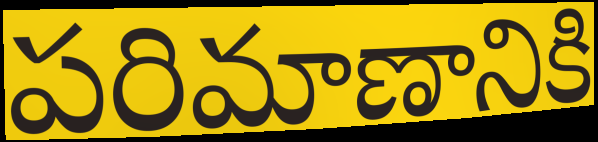
పరిమాణానికి